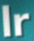
lr